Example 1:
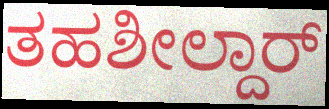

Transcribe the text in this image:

ತಹಶೀಲ್ದಾರ್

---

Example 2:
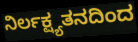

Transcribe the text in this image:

ನಿರ್ಲಕ್ಷ್ಯತನದಿಂದ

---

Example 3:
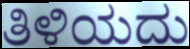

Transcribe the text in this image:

ತಿಳಿಯದು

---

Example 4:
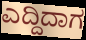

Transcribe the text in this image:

ಎದ್ದಿದಾಗ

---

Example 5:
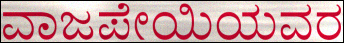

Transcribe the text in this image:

ವಾಜಪೇಯಿಯವರ